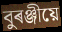
বুৰঞ্জীয়ে